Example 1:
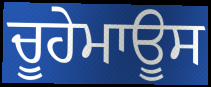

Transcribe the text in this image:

ਚੂਹੇਮਾਊਸ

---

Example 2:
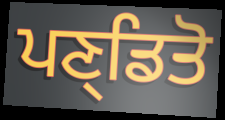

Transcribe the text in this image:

ਪਣ੍ਡਿਤੋ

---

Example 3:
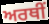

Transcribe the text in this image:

ਅਰਥੀਂ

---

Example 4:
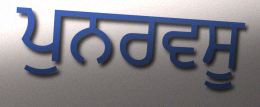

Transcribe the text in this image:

ਪੁਨਰਵਸੂ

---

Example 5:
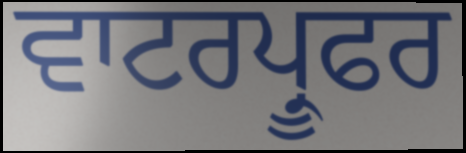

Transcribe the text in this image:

ਵਾਟਰਪ੍ਰੂਫਰ